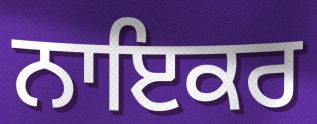
ਨਾਇਕਰ